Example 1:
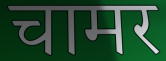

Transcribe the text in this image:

चामर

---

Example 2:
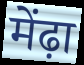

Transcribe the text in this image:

मेंढ़ा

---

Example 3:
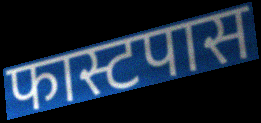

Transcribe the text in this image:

फास्टपास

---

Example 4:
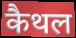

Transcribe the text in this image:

कैथल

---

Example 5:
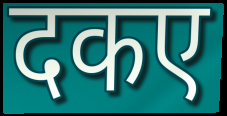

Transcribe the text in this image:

दकए